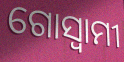
ଗୋସ୍ଵାମୀ